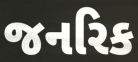
જનરિક